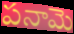
పనామె